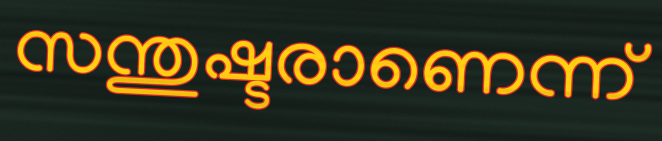
സന്തുഷ്ടരാണെന്ന്